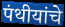
पंथीयांचे